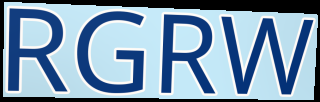
RGRW